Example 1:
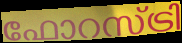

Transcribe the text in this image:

ഫോറസ്ട്രി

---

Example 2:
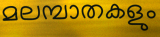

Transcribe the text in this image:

മലമ്പാതകളും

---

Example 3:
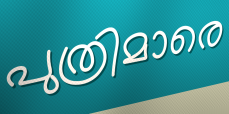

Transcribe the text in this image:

പുത്രിമാരെ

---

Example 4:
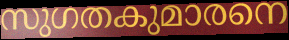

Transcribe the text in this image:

സുഗതകുമാരനെ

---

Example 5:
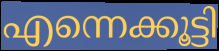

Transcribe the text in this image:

എന്നെക്കൂട്ടി